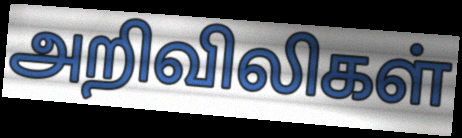
அறிவிலிகள்